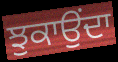
ਝੁਕਾਉਂਦਾ